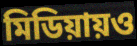
মিডিয়ায়ও